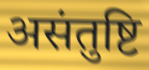
असंतुष्टि